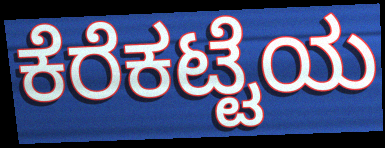
ಕೆರೆಕಟ್ಟೆಯ